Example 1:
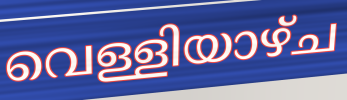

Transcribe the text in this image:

വെള്ളിയാഴ്ച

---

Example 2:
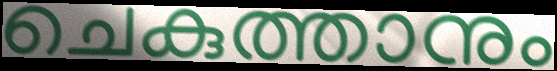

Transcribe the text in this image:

ചെകുത്താനും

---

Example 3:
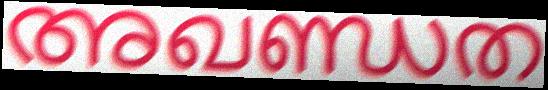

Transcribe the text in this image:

അഖണ്ഡത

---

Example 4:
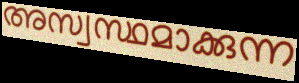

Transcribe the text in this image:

അസ്വസ്ഥമാക്കുന്ന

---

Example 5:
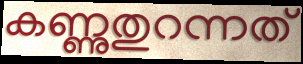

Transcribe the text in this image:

കണ്ണുതുറന്നത്